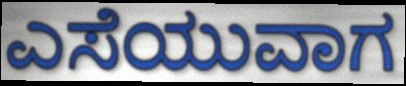
ಎಸೆಯುವಾಗ